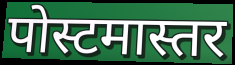
पोस्टमास्तर